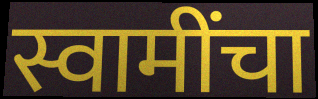
स्वामींचा